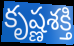
కృష్ణశక్తి